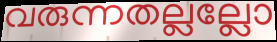
വരുന്നതല്ലല്ലോ